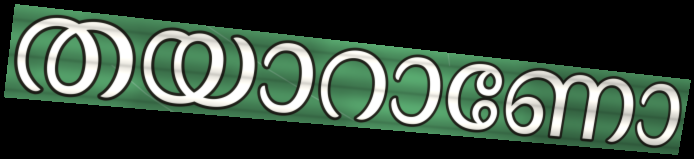
തയാറാണോ